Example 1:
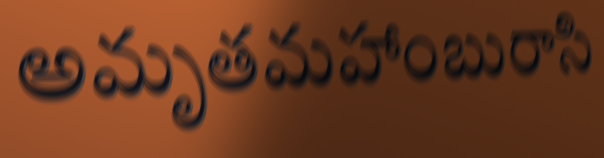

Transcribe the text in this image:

అమృతమహాంబురాసి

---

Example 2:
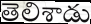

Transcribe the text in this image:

తెలిశాడు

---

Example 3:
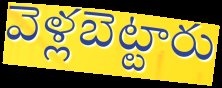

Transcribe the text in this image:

వెళ్లబెట్టారు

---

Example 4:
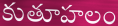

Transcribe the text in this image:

కుతూహలం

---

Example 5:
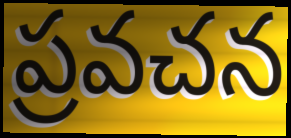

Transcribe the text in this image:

ప్రవచన